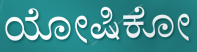
ಯೋಷಿಕೋ